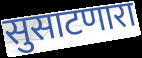
सुसाटणारा